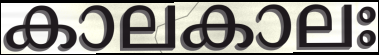
കാലകാലഃ